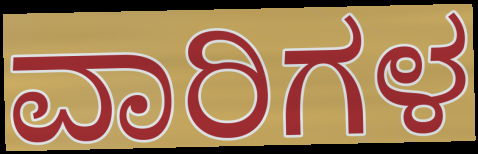
ವಾರಿಗಳ